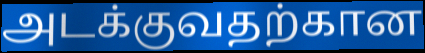
அடக்குவதற்கான